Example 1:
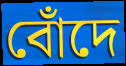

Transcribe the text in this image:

বোঁদে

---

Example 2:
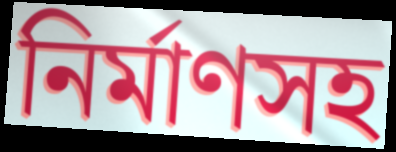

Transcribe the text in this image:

নির্মাণসহ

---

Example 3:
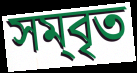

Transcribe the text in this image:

সম্‌বৃত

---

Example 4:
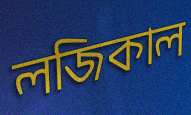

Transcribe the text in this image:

লজিকাল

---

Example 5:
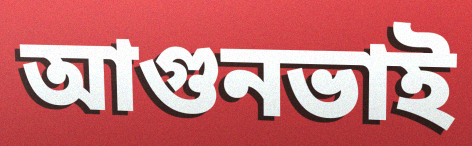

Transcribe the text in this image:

আগুনভাই